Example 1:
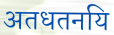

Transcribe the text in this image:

अतधतनयि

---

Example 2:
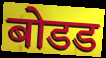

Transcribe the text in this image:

बोडड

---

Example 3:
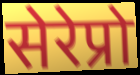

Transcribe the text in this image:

सेरेप्रो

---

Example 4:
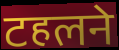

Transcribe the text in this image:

टहलने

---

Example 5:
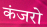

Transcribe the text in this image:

कंजरो